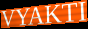
VYAKTI